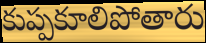
కుప్పకూలిపోతారు